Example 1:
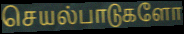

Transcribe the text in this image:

செயல்பாடுகளோ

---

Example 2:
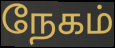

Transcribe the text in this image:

நேகம்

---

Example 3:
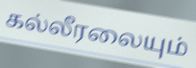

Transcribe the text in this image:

கல்லீரலையும்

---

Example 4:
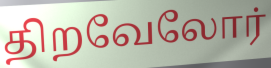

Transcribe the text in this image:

திறவேலோர்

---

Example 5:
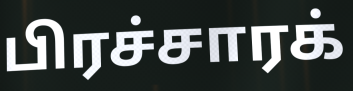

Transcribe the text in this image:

பிரச்சாரக்